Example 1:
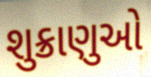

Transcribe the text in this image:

શુક્રાણુઓ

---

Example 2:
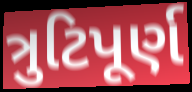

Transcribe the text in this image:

ત્રુટિપૂર્ણ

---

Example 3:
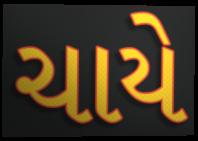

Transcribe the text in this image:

ચાયે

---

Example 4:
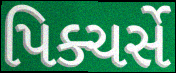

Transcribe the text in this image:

પિક્ચર્સે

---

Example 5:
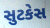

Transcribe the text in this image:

સુટકેસ